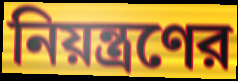
নিয়ন্ত্রণের